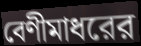
বেণীমাধরের